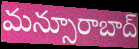
మన్సూరాబాద్